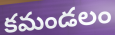
కమండలం